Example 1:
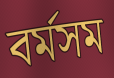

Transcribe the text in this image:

বর্মসম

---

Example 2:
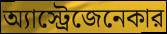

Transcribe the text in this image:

অ্যাস্ট্রেজেনেকার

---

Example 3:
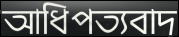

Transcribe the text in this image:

আধিপত্যবাদ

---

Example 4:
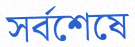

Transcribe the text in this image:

সর্বশেষে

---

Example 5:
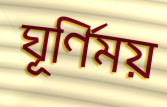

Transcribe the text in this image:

ঘূর্ণিময়